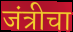
जंत्रीचा